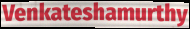
Venkateshamurthy